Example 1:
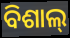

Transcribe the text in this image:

ବିଶାଲ୍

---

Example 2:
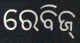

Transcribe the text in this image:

ରେବିଜ୍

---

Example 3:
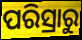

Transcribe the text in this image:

ପରିସ୍ରାରୁ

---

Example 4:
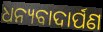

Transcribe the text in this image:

ଧନ୍ୟବାଦାର୍ପଣ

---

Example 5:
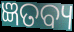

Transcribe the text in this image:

ଜ୍ଞତବ୍ୟ